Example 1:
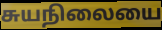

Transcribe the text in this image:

சுயநிலையை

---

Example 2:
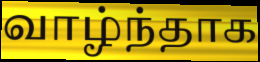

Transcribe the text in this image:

வாழ்ந்தாக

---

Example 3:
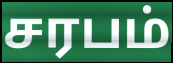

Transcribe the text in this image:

சரபம்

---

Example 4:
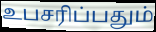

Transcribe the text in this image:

உபசரிப்பதும்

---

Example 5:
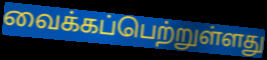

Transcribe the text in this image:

வைக்கப்பெற்றுள்ளது